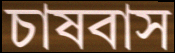
চাষবাস